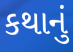
કથાનું